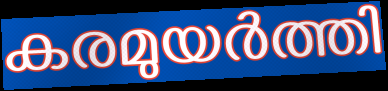
കരമുയർത്തി